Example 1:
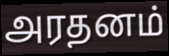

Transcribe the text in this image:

அரதனம்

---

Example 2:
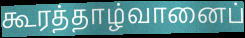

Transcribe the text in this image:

கூரத்தாழ்வானைப்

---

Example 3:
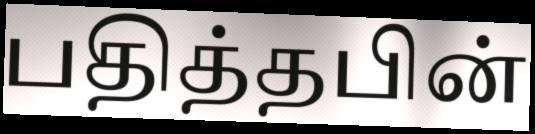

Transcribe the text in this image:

பதித்தபின்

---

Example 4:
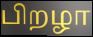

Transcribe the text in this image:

பிறழா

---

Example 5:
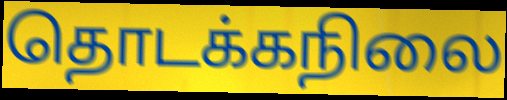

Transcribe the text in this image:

தொடக்கநிலை